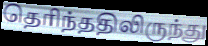
தெரிந்ததிலிருந்து